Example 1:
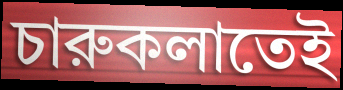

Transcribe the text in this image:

চারুকলাতেই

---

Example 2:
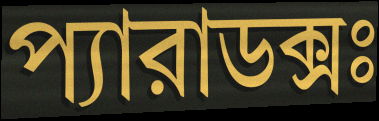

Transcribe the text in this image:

প্যারাডক্সঃ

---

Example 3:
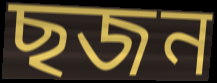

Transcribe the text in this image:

ছজন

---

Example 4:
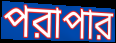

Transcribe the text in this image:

পরাপার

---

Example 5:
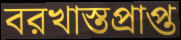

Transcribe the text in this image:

বরখাস্তপ্রাপ্ত